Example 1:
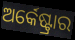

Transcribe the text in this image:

ଅର୍କେଷ୍ଟ୍ରାର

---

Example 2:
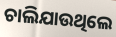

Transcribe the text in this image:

ଚାଲିଯାଉଥିଲେ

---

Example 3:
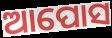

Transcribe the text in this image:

ଆପୋସ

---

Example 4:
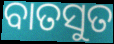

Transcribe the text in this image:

ବାତସୁତ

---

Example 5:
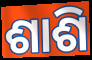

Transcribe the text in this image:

ଶାଶି